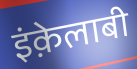
इंक़ेलाबी